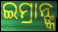
ଇମ୍ରାନ୍ଙ୍କ